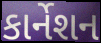
કાર્નેશન